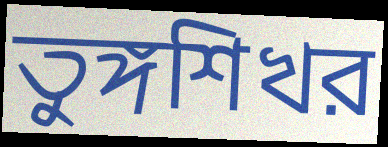
তুঙ্গশিখর